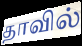
தாவில்